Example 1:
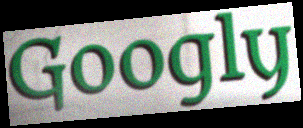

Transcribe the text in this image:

Googly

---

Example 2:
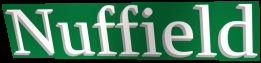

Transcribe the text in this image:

Nuffield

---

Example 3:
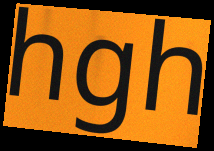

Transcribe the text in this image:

hgh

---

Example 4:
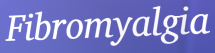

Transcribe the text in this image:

Fibromyalgia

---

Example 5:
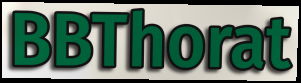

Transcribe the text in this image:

BBThorat